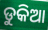
ଡୁକିଆ